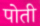
पोती